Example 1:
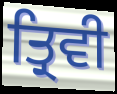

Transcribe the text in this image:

ਤ੍ਰਿਵੀ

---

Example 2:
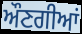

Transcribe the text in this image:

ਔਣਗੀਆਂ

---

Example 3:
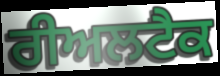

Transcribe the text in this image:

ਰੀਅਲਟੈਕ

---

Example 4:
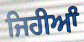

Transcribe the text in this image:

ਜਿਹੀਆੰ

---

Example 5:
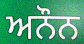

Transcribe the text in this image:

ਅਨੌਨ